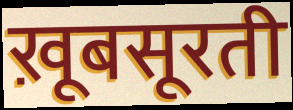
ख़ूबसूरती